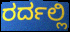
ರರ್ದಲ್ಲಿ